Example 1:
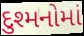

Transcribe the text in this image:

દુશ્મનોમાં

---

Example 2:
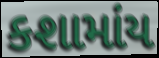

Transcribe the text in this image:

કશામાંય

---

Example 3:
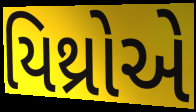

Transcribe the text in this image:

યિથ્રોએ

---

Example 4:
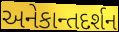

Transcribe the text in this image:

અનેકાન્તદર્શન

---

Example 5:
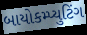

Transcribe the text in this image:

બાયોકમ્પ્યુટિંગ